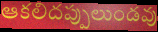
ఆకలిదప్పులుండవు